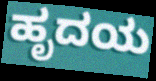
ಹೃದಯ